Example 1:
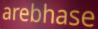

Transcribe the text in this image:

arebhase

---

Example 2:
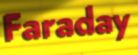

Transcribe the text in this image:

Faraday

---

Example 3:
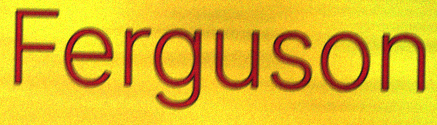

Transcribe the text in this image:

Ferguson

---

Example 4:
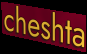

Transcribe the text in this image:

cheshta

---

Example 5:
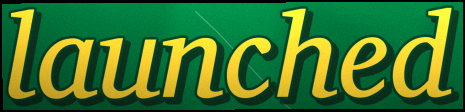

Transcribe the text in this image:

launched